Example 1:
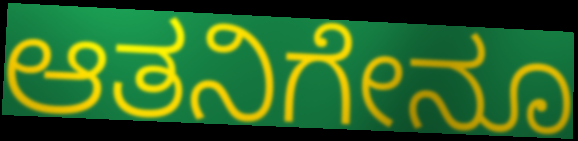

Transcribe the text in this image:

ಆತನಿಗೇನೂ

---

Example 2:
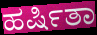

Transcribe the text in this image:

ಹರ್ಷಿತಾ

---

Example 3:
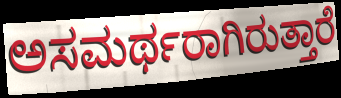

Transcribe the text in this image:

ಅಸಮರ್ಥರಾಗಿರುತ್ತಾರೆ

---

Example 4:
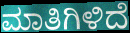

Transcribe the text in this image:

ಮಾತಿಗಿಳಿದೆ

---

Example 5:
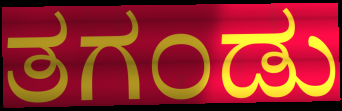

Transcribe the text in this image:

ತಗಂಡು